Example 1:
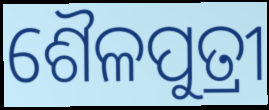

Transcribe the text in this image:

ଶୈଳପୁତ୍ରୀ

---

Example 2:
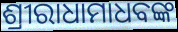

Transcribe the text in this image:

ଶ୍ରୀରାଧାମାଧବଙ୍କ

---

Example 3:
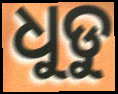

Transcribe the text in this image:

ଧୁଡୁ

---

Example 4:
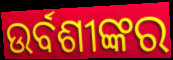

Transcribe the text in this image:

ଉର୍ବଶୀଙ୍କର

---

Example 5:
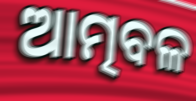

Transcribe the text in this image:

ଆତ୍ମବଳ